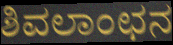
ಶಿವಲಾಂಛನ